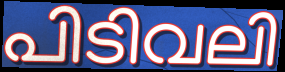
പിടിവലി